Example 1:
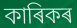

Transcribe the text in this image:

কাৰিকৰ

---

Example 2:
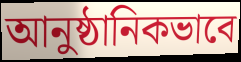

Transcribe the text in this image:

আনুষ্ঠানিকভাবে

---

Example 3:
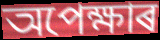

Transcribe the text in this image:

অপেক্ষাৰ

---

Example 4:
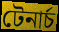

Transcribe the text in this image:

টেনাৰ্চ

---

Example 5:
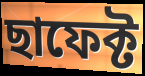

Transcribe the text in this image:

ছাফেক্ট